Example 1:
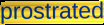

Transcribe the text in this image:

prostrated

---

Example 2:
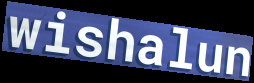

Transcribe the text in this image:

wishalun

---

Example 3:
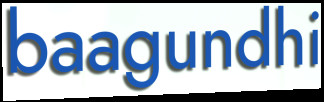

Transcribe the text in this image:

baagundhi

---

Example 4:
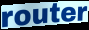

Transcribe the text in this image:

router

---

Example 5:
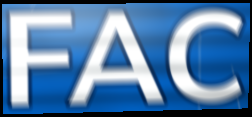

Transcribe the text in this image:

FAC